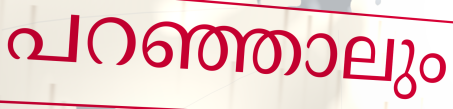
പറഞ്ഞാലും